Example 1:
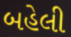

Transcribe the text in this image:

બહેલી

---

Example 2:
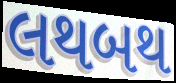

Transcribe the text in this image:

લથબથ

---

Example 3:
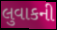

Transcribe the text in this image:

લુવાકની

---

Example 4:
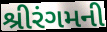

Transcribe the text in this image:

શ્રીરંગમની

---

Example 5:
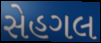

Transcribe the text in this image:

સેહગલ